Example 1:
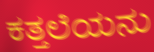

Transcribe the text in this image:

ಕತ್ತಲೆಯನು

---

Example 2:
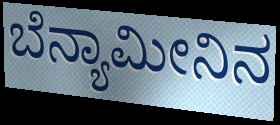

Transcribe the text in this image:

ಬೆನ್ಯಾಮೀನಿನ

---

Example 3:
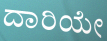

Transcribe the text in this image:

ದಾರಿಯೇ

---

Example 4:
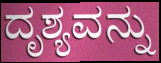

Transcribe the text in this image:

ದೃಶ್ಯವನ್ನು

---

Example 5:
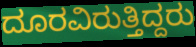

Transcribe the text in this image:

ದೂರವಿರುತ್ತಿದ್ದರು